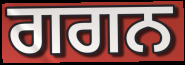
ਗਗਨ